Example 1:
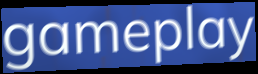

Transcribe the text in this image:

gameplay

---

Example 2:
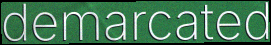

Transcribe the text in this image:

demarcated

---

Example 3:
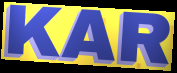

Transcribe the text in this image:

KAR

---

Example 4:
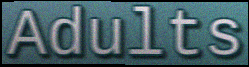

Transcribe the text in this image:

Adults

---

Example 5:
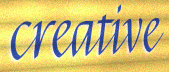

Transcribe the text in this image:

creative